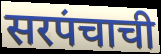
सरपंचाची